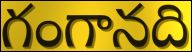
గంగానది